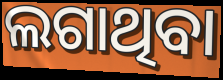
ଲଗାଥିବା